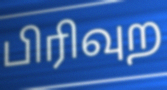
பிரிவுற